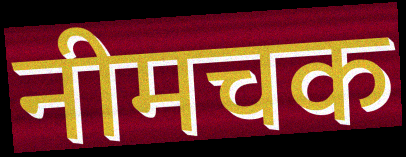
नीमचक